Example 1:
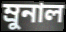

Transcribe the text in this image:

ম্রুনাল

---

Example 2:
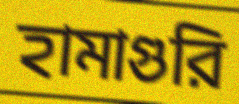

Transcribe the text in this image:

হামাগুরি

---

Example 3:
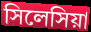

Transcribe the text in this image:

সিলেসিয়া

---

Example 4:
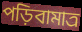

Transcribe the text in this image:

পড়িবামাত্র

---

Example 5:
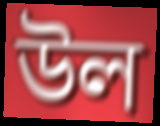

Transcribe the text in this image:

উল